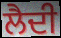
ਲੈਦੀ